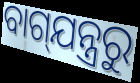
ବାଗ୍‌ଯନ୍ତ୍ରରୁ